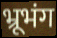
भ्रूभंग